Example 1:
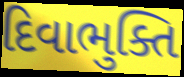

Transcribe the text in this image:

દિવાભુક્તિ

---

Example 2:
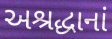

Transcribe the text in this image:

અશ્રદ્ધાનાં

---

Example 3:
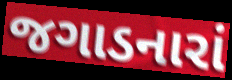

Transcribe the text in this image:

જગાડનારાં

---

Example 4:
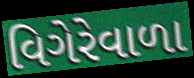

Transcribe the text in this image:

વિગેરેવાળા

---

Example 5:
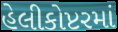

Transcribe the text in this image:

હેલીકોપ્ટરમાં